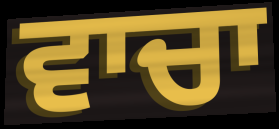
ਵਾਚਾ